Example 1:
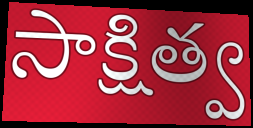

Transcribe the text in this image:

సాక్షిత్వ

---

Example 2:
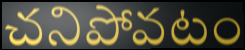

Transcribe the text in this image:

చనిపోవటం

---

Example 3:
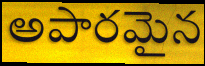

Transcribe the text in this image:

అపారమైన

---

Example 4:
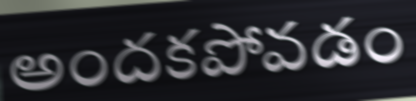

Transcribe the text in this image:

అందకపోవడం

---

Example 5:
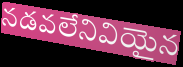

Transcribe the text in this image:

నడవలేనివియైన